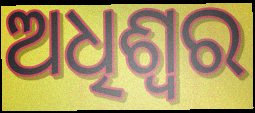
ଅଧିଶ୍ବର